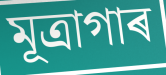
মূত্ৰাগাৰ